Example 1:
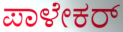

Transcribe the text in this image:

ಪಾಳೇಕರ್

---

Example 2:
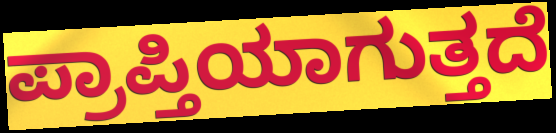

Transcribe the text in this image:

ಪ್ರಾಪ್ತಿಯಾಗುತ್ತದೆ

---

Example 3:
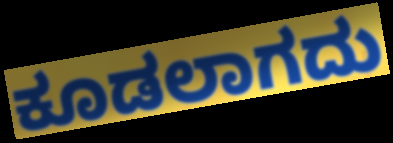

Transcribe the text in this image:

ಕೂಡಲಾಗದು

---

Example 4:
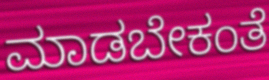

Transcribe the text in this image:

ಮಾಡಬೇಕಂತೆ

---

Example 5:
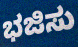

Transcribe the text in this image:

ಭಜಿಸು